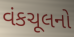
વંકચૂલનો